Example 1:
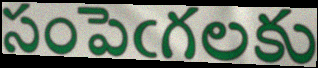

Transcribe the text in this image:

సంపెఁగలకు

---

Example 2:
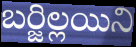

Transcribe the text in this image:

బర్జిల్లయిని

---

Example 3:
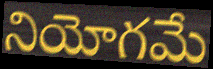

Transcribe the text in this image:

నియోగమే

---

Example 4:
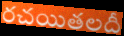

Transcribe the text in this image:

రచయితలదీ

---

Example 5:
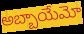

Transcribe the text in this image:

అబ్బాయేమో